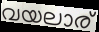
വയലാര്